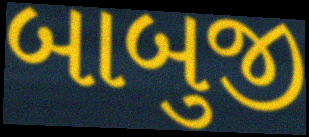
બાબુજી